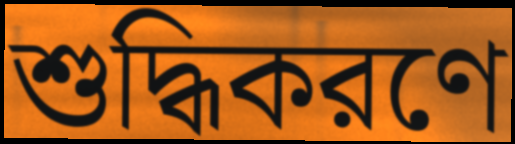
শুদ্ধিকরণে